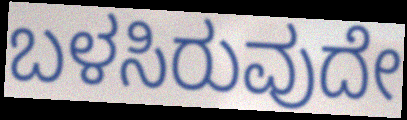
ಬಳಸಿರುವುದೇ